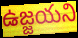
ఉజ్జయని